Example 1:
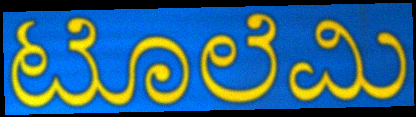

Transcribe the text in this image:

ಟೊಲೆಮಿ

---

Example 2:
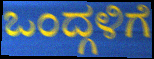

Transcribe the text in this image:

ಒಂದ್ಗಳಿಗೆ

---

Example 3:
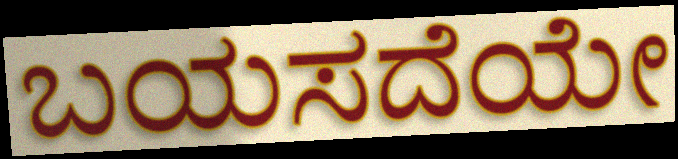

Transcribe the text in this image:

ಬಯಸದೆಯೇ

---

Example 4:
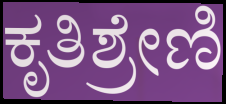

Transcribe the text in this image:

ಕೃತಿಶ್ರೇಣಿ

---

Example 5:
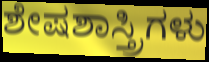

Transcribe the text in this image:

ಶೇಷಶಾಸ್ತ್ರಿಗಳು